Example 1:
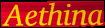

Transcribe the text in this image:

Aethina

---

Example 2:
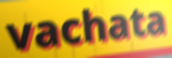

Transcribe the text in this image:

vachata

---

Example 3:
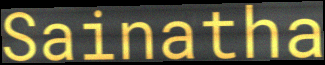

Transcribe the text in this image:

Sainatha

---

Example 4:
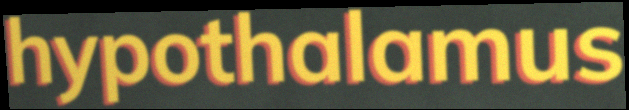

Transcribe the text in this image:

hypothalamus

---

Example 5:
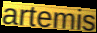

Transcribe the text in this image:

artemis